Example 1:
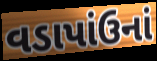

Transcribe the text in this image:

વડાપાંઉનાં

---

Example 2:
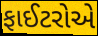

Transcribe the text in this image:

ફાઈટરોએ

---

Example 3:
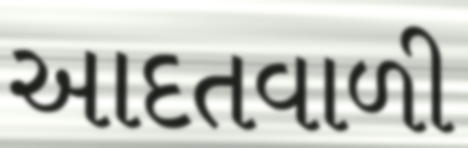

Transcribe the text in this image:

આદતવાળી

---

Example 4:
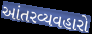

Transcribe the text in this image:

આંતરવ્યવહારો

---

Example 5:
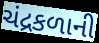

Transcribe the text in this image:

ચંદ્રકળાની